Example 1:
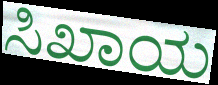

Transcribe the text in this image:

ಸಿಖಾಯ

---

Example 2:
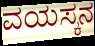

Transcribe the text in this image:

ವಯಸ್ಕನ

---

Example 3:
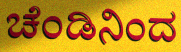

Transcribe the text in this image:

ಚೆಂಡಿನಿಂದ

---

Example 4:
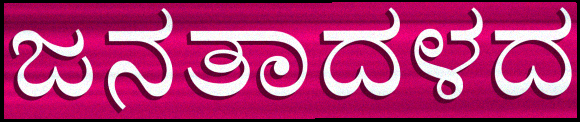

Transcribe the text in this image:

ಜನತಾದಳದ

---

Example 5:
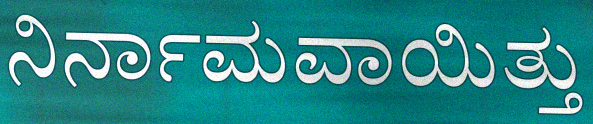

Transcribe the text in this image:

ನಿರ್ನಾಮವಾಯಿತ್ತು